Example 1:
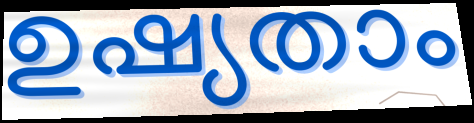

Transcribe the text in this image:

ഉഷ്യതാം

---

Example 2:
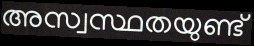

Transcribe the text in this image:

അസ്വസ്ഥതയുണ്ട്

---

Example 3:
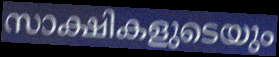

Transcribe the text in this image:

സാക്ഷികളുടെയും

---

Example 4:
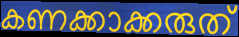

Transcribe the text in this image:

കണക്കാക്കരുത്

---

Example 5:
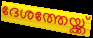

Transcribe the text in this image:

ദേശത്തേയ്ക്ക്